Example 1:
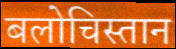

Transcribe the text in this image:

बलोचिस्तान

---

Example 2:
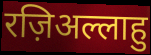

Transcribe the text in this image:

रज़िअल्लाहु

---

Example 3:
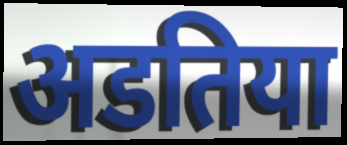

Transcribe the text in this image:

अडतिया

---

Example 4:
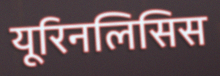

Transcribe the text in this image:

यूरिनलिसिस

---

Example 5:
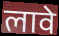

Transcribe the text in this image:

लावे